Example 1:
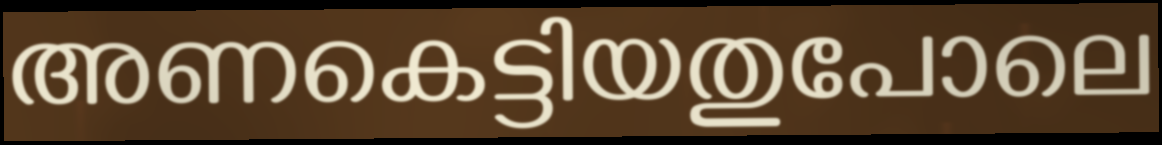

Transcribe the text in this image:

അണകെട്ടിയതുപോലെ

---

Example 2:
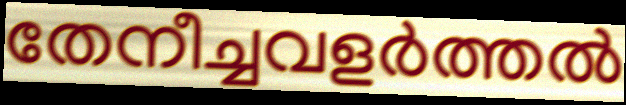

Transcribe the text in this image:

തേനീച്ചവളർത്തൽ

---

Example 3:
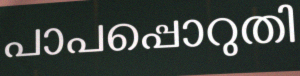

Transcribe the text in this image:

പാപപ്പൊറുതി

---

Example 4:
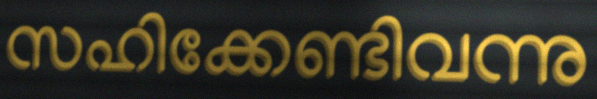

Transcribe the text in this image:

സഹിക്കേണ്ടിവന്നു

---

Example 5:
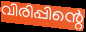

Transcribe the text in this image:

വിരിപ്പിന്റെ